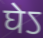
घेऽ